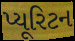
પ્યૂરિટન